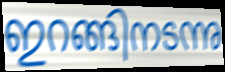
ഇറങ്ങിനടന്നു